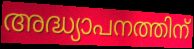
അദ്ധ്യാപനത്തിന്